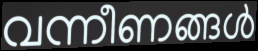
വന്നീണങ്ങൾ